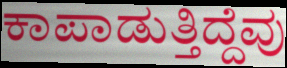
ಕಾಪಾಡುತ್ತಿದ್ದೆವು